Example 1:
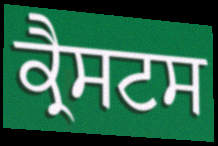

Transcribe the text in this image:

ਕ੍ਰੈਸਟਸ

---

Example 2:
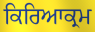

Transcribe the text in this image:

ਕਿਰਿਆਕ੍ਰਮ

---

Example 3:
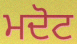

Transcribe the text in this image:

ਮਦੋਟ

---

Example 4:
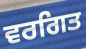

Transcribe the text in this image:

ਵਰਗਿਤ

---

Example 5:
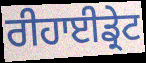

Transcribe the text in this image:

ਰੀਹਾਈਡ੍ਰੇਟ